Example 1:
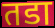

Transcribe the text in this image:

तडा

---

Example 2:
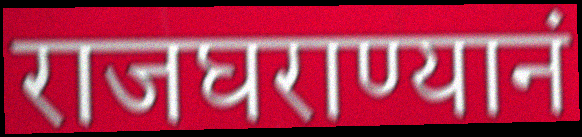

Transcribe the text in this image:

राजघराण्यानं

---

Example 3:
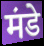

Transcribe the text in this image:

मंडे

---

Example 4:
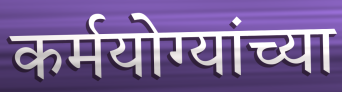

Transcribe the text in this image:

कर्मयोग्यांच्या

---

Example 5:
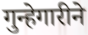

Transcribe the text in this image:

गुन्हेगारीने